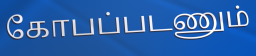
கோபப்படணும்